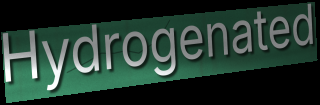
Hydrogenated